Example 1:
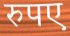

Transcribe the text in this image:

रुपए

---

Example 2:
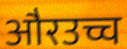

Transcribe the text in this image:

औरउच्च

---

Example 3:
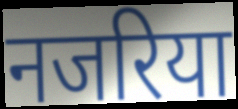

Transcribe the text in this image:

नजरिया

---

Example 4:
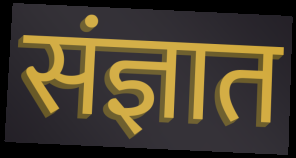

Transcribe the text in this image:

संज्ञात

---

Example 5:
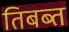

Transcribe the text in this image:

तिबब्त